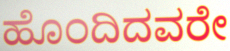
ಹೊಂದಿದವರೇ